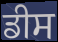
ਡੀਸ